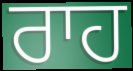
ਰਾਹ